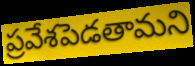
ప్రవేశపెడతామని